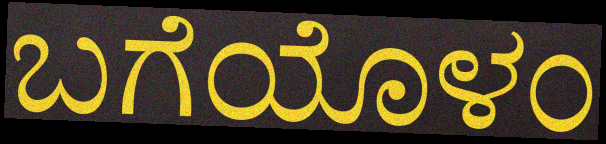
ಬಗೆಯೊಳಂ